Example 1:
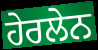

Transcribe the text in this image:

ਹੇਰਲੇਨ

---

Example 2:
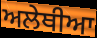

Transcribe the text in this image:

ਅਲੇਥੀਆ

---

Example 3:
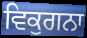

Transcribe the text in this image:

ਵਿਕੁਗਨਾ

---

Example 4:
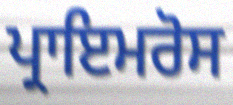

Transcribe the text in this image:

ਪ੍ਰਾਇਮਰੋਸ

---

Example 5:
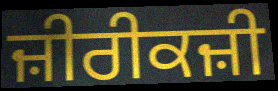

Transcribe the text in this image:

ਜ਼ੀਰੀਕਜ਼ੀ